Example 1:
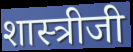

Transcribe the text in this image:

शास्त्रीजी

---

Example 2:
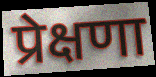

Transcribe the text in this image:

प्रेक्षणा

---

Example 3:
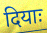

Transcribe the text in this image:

दियाः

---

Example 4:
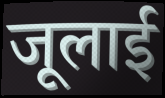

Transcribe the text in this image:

जूलाई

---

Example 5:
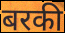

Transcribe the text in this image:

बरकी